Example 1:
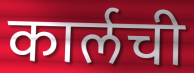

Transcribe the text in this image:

कार्लची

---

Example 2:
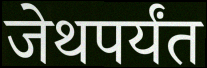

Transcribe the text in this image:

जेथपर्यंत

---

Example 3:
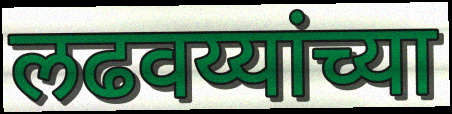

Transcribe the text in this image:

लढवय्यांच्या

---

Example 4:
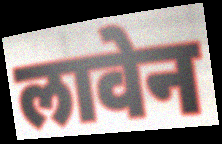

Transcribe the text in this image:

लावेन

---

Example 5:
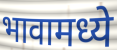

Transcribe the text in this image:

भावामध्ये